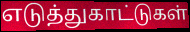
எடுத்துகாட்டுகள்